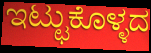
ಇಟ್ಟುಕೊಳ್ಳದ